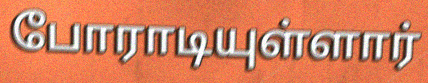
போராடியுள்ளார்